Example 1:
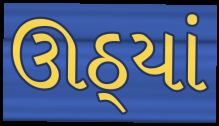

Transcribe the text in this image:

ઊઠ્યાં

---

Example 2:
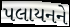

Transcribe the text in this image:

પલાયનને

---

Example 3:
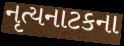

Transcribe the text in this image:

નૃત્યનાટકના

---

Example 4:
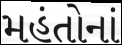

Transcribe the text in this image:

મહંતોનાં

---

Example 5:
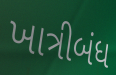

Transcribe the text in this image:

ખાત્રીબંધ